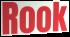
Rook